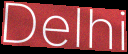
Delhi